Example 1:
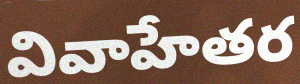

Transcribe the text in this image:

వివాహేతర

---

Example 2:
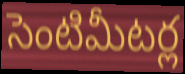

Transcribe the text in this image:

సెంటిమీటర్ల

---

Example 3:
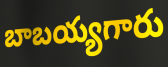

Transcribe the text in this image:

బాబయ్యగారు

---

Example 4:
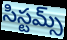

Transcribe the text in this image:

సిస్టమ్స్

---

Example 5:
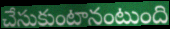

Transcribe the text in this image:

చేసుకుంటానంటుంది